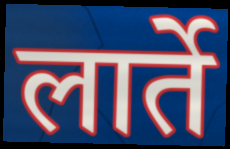
लार्ते